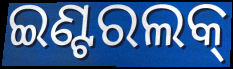
ଇଣ୍ଟରଲକ୍